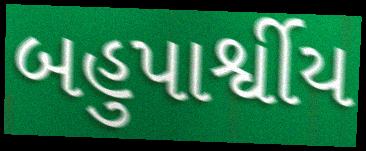
બહુપાર્શ્વીય